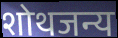
शोथजन्य